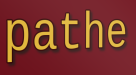
pathe